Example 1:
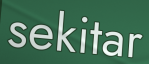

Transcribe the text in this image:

sekitar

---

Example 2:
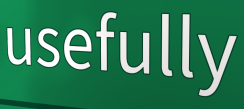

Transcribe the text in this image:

usefully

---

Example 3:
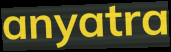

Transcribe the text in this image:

anyatra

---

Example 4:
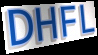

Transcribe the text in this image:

DHFL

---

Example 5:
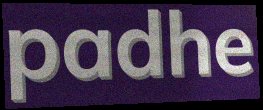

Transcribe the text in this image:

padhe